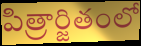
పిత్రార్జితంలో